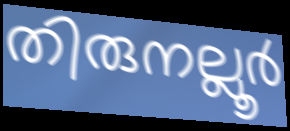
തിരുനല്ലൂർ